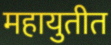
महायुतीत